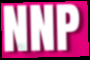
NNP